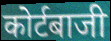
कोर्टबाजी